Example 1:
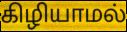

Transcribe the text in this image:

கிழியாமல்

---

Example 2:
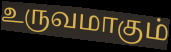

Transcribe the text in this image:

உருவமாகும்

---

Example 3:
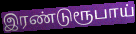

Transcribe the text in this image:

இரண்டுரூபாய்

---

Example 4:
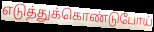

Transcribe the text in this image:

எடுத்துக்கொண்டுபோய்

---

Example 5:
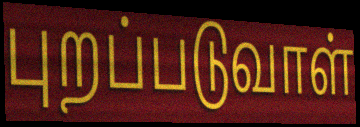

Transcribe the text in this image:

புறப்படுவாள்